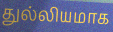
துல்லியமாக